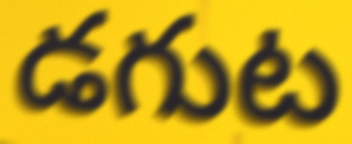
డగుట